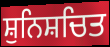
ਸ਼ੁਨਿਸ਼ਚਿਤ